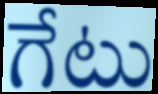
గేటు